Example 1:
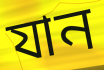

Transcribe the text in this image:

যান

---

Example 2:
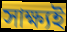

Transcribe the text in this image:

সাক্ষ্যই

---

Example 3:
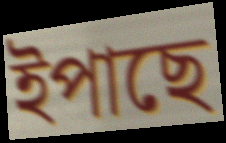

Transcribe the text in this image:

ইপাছে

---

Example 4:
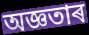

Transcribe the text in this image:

অজ্ঞতাৰ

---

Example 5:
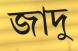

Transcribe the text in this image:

জাদু